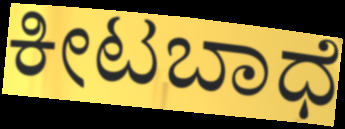
ಕೀಟಬಾಧೆ